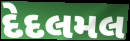
દેદલમલ